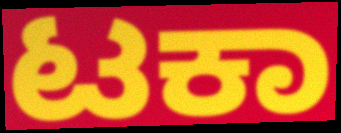
ಟಕಾ